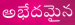
అభేదమైన